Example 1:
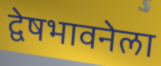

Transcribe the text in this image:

द्वेषभावनेला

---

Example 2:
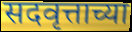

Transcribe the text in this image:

सदवृत्ताच्या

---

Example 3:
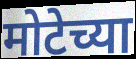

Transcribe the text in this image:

मोटेच्या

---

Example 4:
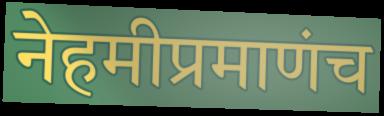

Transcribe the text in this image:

नेहमीप्रमाणंच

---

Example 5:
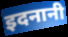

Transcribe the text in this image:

इदनानी